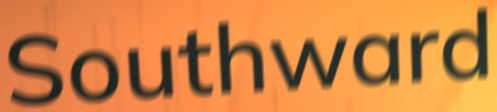
Southward